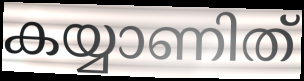
കയ്യാണിത്